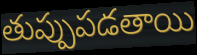
తుప్పుపడతాయి